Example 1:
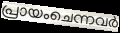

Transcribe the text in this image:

പ്രായംചെന്നവർ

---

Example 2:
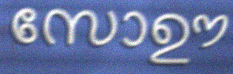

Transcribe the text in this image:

സോഊ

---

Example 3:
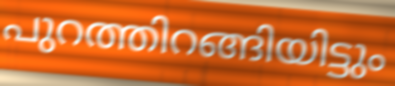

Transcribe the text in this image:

പുറത്തിറങ്ങിയിട്ടും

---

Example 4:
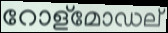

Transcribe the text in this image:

റോള്മോഡല്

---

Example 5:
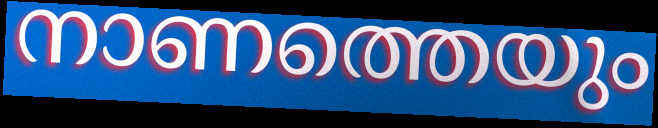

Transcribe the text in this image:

നാണത്തെയും